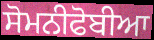
ਸੋਮਨੀਫੋਬੀਆ